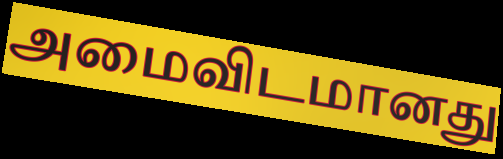
அமைவிடமானது